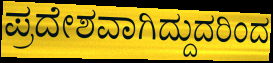
ಪ್ರದೇಶವಾಗಿದ್ದುದರಿಂದ